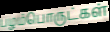
பழம்பொருட்கள்